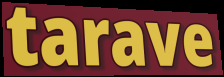
tarave